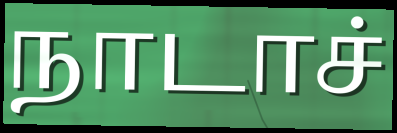
நாடாச்